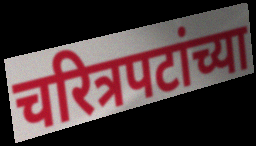
चरित्रपटांच्या